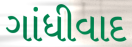
ગાંધીવાદ